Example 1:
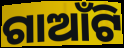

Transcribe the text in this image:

ଗାଆଁଟି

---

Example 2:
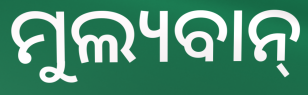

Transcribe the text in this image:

ମୁଲ୍ୟବାନ୍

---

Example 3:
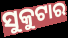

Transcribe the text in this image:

ସୁକୁଟାର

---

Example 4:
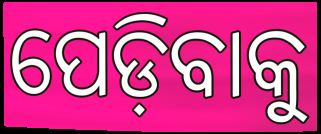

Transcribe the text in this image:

ପେଡ଼ିବାକୁ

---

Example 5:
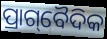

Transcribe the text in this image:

ପ୍ରାଗ୍‌ବୈଦିକ